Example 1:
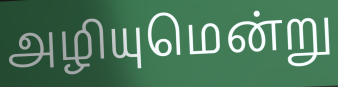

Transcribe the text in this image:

அழியுமென்று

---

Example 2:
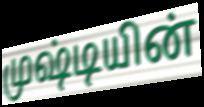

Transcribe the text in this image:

முஷ்டியின்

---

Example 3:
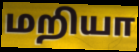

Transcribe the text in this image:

மறியா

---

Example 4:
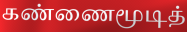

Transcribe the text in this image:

கண்ணைமூடித்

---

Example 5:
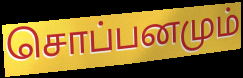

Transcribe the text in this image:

சொப்பனமும்